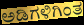
ಅಡಿಗಳಿಗಿಂತ